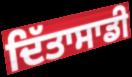
ਦਿੱਤਾਸਾਡੀ